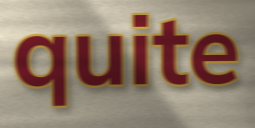
quite